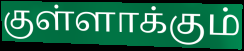
குள்ளாக்கும்